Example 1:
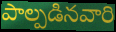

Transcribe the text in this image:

పాల్పడినవారి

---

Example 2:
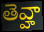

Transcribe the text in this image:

తెవ్హా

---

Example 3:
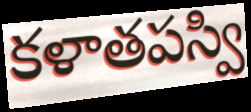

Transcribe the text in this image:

కళాతపస్వి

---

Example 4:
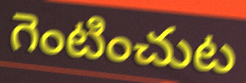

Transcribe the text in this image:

గెంటించుట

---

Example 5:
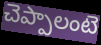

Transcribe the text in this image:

చెప్పాలంటె